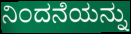
ನಿಂದನೆಯನ್ನು